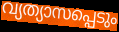
വ്യത്യാസപ്പെടും